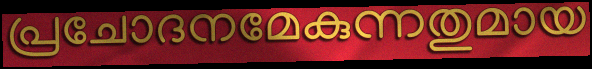
പ്രചോദനമേകുന്നതുമായ